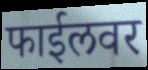
फाईलवर